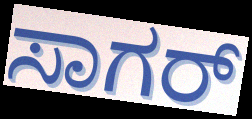
ಸಾಗರ್